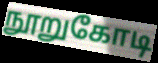
நூறுகோடி